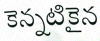
కెన్నటికైన